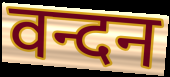
वन्दन